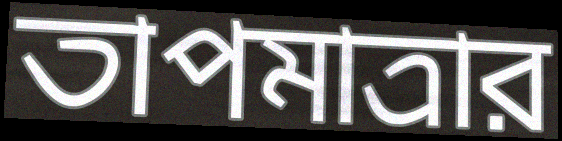
তাপমাত্রার